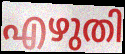
എഴുതി